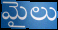
మైలు